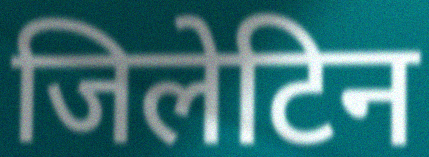
जिलेटिन